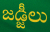
జడ్జీలు